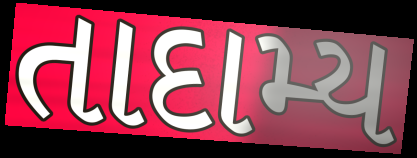
તાદામ્ય